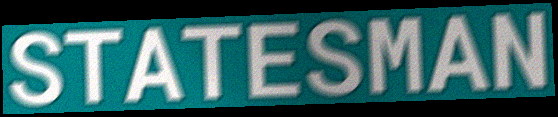
STATESMAN